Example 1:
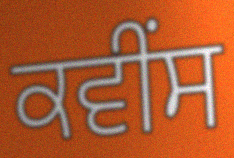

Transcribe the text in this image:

ਕਵੀਂਸ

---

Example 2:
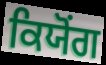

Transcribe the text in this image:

ਕਿਯੋਂਗ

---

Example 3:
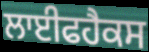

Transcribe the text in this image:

ਲਾਈਫਹੈਕਸ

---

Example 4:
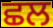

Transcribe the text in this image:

ਛਲ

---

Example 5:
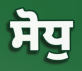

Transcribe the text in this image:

ਸੋਧੁ